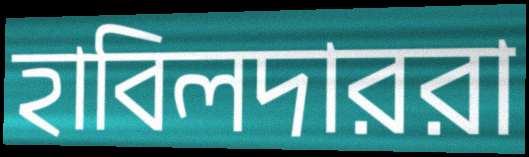
হাবিলদাররা